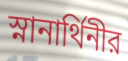
স্নানার্থিনীর